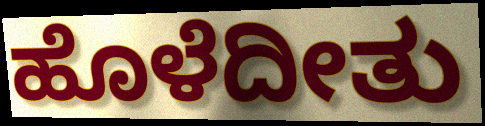
ಹೊಳೆದೀತು